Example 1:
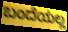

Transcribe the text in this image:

ಬಂದೆಯಲ್ಲ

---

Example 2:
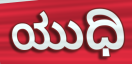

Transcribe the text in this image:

ಯುಧಿ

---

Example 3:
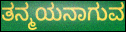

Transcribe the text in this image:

ತನ್ಮಯನಾಗುವ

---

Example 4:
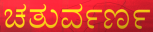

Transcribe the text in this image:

ಚತುರ್ವರ್ಣ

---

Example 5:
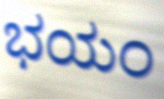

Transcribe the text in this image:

ಭಯಂ